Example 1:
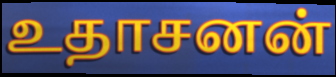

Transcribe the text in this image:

உதாசனன்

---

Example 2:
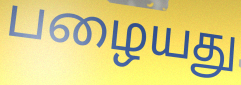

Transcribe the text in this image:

பழையது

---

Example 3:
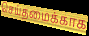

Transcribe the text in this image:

செய்தமைக்காக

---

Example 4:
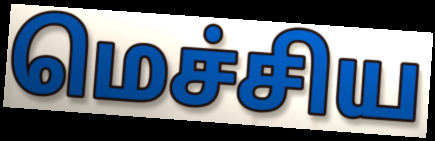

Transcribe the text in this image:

மெச்சிய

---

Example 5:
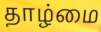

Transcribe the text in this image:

தாழ்மை